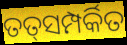
ତତ୍‌ସମ୍ପର୍କିତ